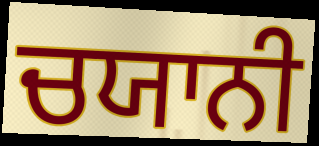
ਚਯਾਨੀ